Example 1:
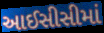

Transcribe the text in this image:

આઈસીસીમાં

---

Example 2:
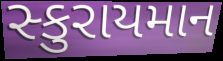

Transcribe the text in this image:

સ્કુરાયમાન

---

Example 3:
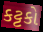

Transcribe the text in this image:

કટ્ટકો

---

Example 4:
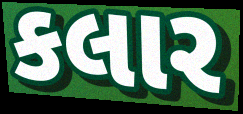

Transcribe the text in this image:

કલાર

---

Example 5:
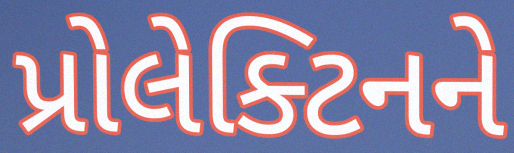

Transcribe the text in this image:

પ્રોલેક્ટિનને